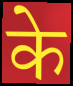
के